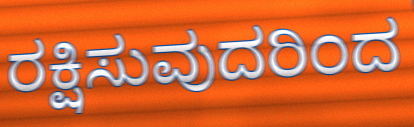
ರಕ್ಷಿಸುವುದರಿಂದ